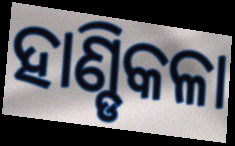
ହାଣ୍ଡିକଳା